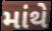
માંથે